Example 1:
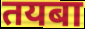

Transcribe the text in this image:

तयबा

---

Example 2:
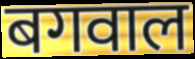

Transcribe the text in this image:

बगवाल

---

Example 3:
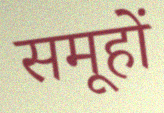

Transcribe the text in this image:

समूहों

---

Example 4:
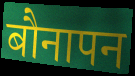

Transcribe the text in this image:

बौनापन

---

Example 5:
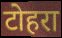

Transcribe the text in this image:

टोहरा